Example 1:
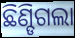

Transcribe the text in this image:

ଛିଣ୍ଡିଗଲା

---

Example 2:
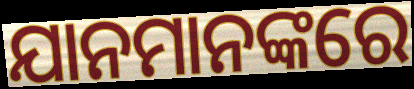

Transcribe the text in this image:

ଯାନମାନଙ୍କରେ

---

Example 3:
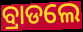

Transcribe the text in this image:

ବ୍ରାଡଲେ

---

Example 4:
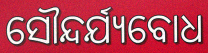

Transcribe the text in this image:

ସୌନ୍ଦର୍ଯ୍ୟବୋଧ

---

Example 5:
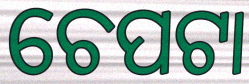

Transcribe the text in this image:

ଚେପଟା